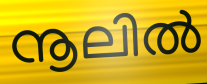
നൂലിൽ